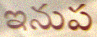
ఇనుప